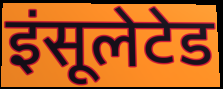
इंसूलेटेड